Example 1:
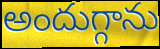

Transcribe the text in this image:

అందుగ్గాను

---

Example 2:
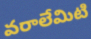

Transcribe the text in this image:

వరాలేమిటి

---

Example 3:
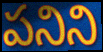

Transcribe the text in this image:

పనిని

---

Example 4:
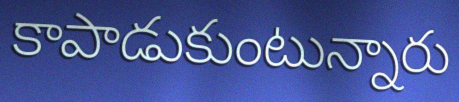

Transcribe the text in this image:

కాపాడుకుంటున్నారు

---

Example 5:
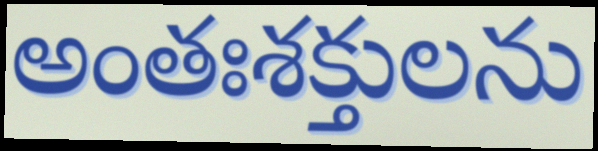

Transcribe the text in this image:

అంతఃశక్తులను